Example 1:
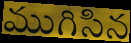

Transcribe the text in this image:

ముగిసిన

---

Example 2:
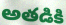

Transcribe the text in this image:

అతడికి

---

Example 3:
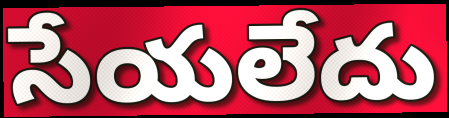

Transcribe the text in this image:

సేయలేదు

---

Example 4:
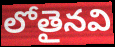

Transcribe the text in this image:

లోతైనవి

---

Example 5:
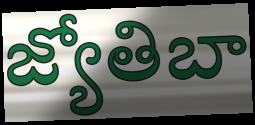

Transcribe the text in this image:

జ్యోతిబా